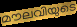
മൗലവിയുടെ